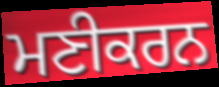
ਮਣੀਕਰਨ